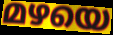
മഴയെ